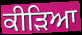
ਕੀੜਿਆ